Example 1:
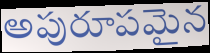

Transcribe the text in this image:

అపురూపమైన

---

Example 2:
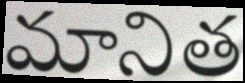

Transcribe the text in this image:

మానిత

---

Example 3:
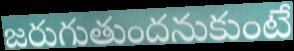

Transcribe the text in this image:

జరుగుతుందనుకుంటే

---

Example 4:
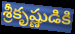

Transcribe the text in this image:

శ్రీకృష్ణుడికి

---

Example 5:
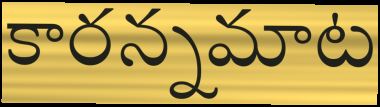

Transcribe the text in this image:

కారన్నమాట